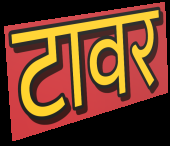
टावर